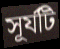
সূর্যটি